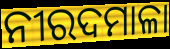
ନୀରଦମାଳା